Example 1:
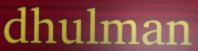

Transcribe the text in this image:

dhulman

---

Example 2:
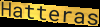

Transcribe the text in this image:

Hatteras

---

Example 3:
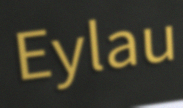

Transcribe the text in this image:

Eylau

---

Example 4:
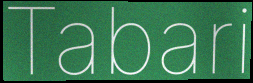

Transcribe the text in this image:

Tabari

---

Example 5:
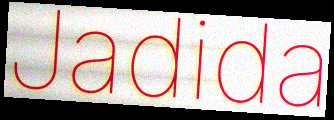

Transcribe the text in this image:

Jadida